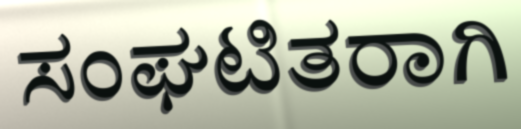
ಸಂಘಟಿತರಾಗಿ